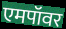
एमपॉवर